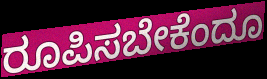
ರೂಪಿಸಬೇಕೆಂದೂ